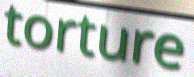
torture